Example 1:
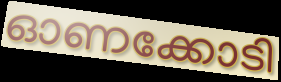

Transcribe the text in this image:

ഓണക്കോടി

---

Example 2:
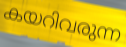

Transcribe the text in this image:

കയറിവരുന്ന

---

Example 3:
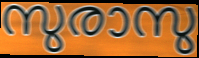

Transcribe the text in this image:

സുരാസു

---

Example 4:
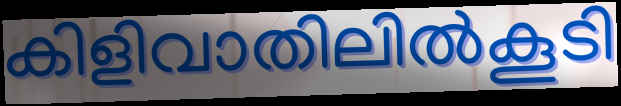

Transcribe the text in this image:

കിളിവാതിലിൽകൂടി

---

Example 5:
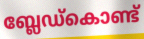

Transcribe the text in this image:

ബ്ലേഡ്കൊണ്ട്